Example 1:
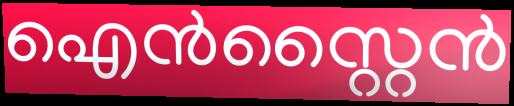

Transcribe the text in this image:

ഐൻസ്റ്റൈൻ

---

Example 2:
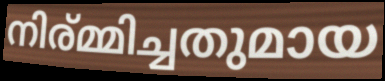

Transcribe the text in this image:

നിര്മ്മിച്ചതുമായ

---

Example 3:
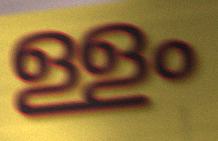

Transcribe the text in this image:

ള്ളം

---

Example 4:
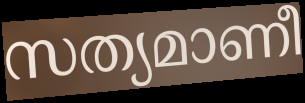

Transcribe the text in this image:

സത്യമാണീ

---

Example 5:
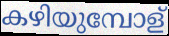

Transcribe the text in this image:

കഴിയുമ്പോള്